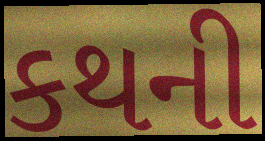
કથની